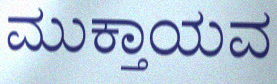
ಮುಕ್ತಾಯವ